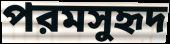
পরমসুহৃদ